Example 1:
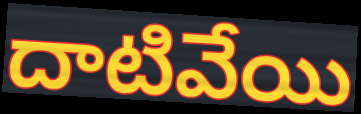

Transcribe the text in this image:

దాటివేయి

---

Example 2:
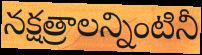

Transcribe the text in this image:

నక్షత్రాలన్నింటినీ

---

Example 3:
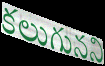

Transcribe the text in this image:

కలుగునని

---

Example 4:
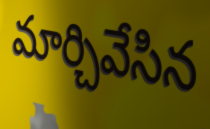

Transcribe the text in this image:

మార్చివేసిన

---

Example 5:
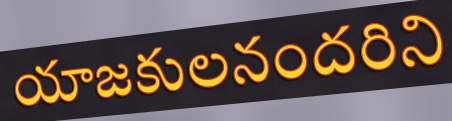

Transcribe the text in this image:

యాజకులనందరిని